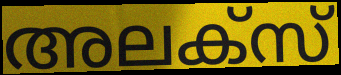
അലക്സ്